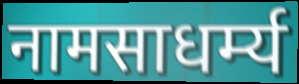
नामसाधर्म्य